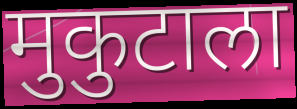
मुकुटाला